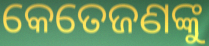
କେତେଜଣଙ୍କୁ